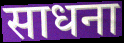
साधना